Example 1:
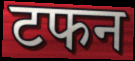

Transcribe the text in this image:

टफन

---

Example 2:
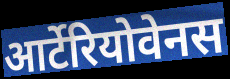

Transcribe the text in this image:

आर्टेरियोवेनस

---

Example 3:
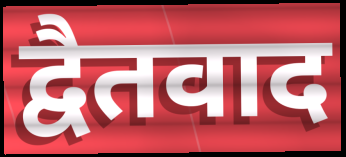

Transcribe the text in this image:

द्वैतवाद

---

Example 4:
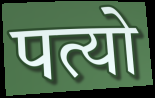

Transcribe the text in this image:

पत्यो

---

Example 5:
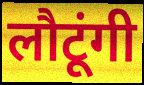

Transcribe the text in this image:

लौटूंगी